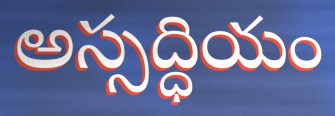
అస్సద్ధియం